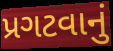
પ્રગટવાનું